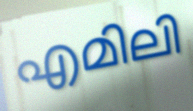
എമിലി